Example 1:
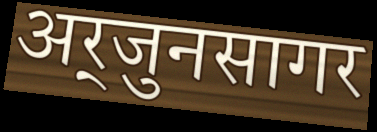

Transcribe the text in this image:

अर्जुनसागर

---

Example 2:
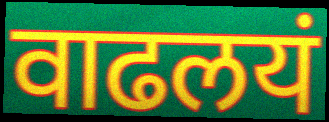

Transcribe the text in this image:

वाढलयं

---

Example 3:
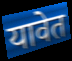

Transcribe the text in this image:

यावेत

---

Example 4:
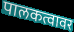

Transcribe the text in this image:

पालकत्वावर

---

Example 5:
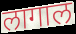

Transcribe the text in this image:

लागाल